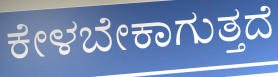
ಕೇಳಬೇಕಾಗುತ್ತದೆ